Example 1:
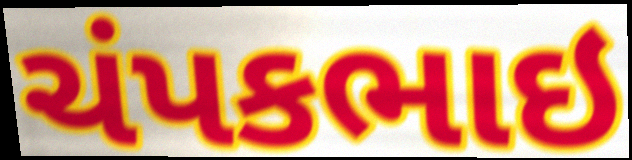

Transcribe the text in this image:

ચંપકભાઇ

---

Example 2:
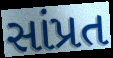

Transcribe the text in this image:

સાંપ્રત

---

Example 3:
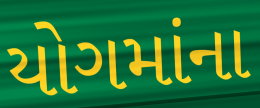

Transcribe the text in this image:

યોગમાંના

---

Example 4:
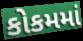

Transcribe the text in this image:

કોકમમાં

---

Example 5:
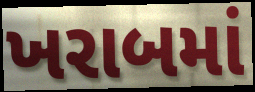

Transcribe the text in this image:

ખરાબમાં